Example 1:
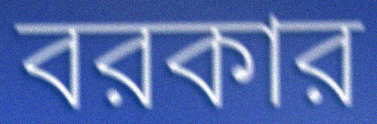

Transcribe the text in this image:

বরকার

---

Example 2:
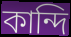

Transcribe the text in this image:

কান্দি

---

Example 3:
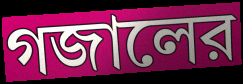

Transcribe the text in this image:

গজালের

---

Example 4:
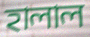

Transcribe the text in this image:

হালাল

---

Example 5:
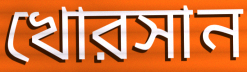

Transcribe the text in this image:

খোরসান